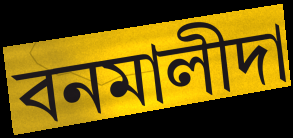
বনমালীদা